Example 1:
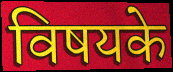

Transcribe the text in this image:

विषयके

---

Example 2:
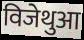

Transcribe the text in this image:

विजेथुआ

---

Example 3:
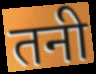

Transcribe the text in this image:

तनी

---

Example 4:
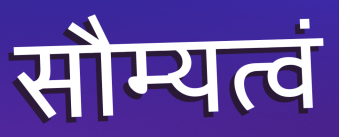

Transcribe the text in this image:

सौम्यत्वं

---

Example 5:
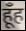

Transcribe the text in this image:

हूँह